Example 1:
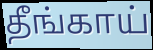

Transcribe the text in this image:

தீங்காய்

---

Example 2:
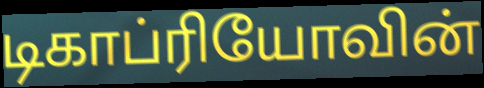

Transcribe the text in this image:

டிகாப்ரியோவின்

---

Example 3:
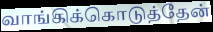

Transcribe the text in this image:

வாங்கிக்கொடுத்தேன்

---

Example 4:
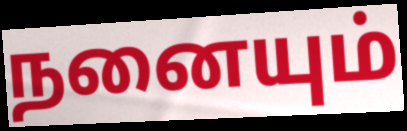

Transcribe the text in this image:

நனையும்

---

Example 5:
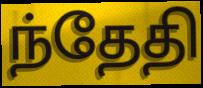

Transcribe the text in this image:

ந்தேதி